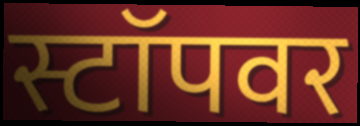
स्टॉपवर